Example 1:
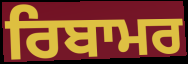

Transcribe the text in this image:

ਰਿਬਾਮਰ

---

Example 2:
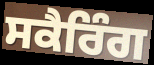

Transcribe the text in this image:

ਸਕੈਰਿੰਗ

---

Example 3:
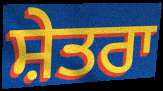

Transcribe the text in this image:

ਸ਼ੇਤਰਾ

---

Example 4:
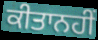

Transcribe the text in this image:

ਕੀਤਾਨਹੀਂ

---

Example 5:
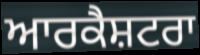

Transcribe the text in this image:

ਆਰਕੈਸ਼ਟਰਾ